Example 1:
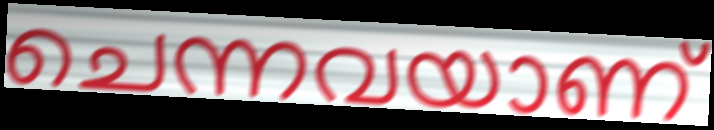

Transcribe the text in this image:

ചെന്നവയാണ്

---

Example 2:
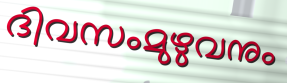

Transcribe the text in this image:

ദിവസംമുഴുവനും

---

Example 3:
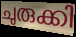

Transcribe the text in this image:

ചുരുക്കി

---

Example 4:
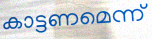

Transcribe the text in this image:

കാട്ടണമെന്ന്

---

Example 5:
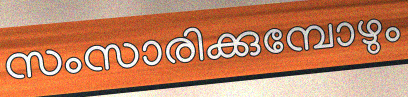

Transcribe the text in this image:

സംസാരിക്കുമ്പോഴും